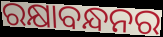
ରକ୍ଷାବନ୍ଧନର